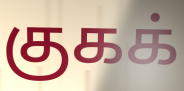
குகக்